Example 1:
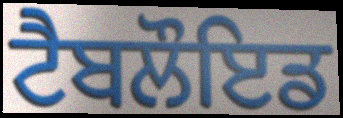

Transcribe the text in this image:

ਟੈਬਲੌਇਡ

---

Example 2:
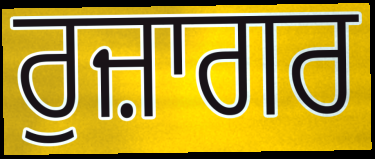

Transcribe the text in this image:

ਰੁਜ਼ਾਗਰ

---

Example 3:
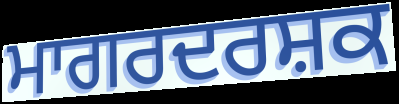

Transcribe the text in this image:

ਮਾਗਰਦਰਸ਼ਕ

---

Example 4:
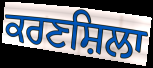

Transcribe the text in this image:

ਕਰਣਸ਼ਿਲਾ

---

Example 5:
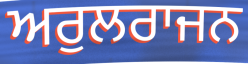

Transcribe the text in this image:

ਅਰੁਲਰਾਜਨ